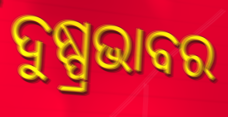
ଦୁଷ୍ପ୍ରଭାବର